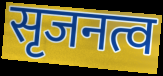
सृजनत्व